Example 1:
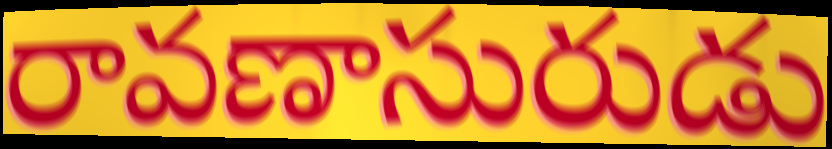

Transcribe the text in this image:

రావణాసురుడు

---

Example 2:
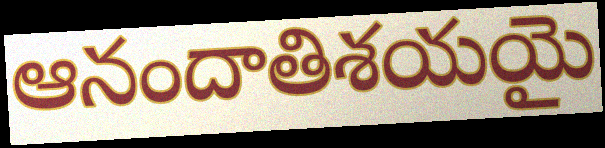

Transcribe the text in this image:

ఆనందాతిశయయై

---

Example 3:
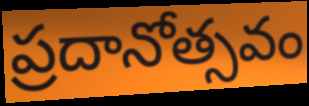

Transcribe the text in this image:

ప్రదానోత్సవం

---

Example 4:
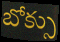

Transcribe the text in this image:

బోక్సు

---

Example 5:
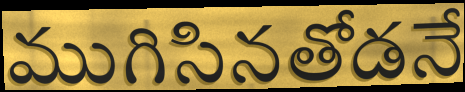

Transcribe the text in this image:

ముగిసినతోడనే